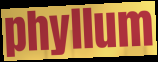
phyllum